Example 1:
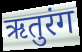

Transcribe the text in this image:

ऋतुरंग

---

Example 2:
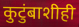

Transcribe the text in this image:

कुटुंबाशीही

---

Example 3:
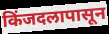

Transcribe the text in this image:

किंजदलापासून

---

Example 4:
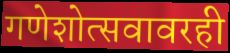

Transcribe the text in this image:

गणेशोत्सवावरही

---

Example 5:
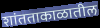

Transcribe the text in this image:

शांतताकाळातील